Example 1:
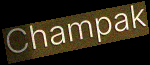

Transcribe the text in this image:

Champak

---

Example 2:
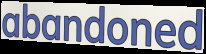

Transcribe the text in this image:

abandoned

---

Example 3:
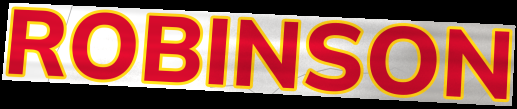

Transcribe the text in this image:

ROBINSON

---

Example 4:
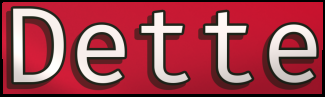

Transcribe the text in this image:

Dette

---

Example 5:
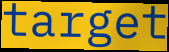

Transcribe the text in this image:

target